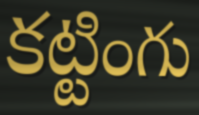
కట్టింగు